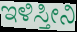
ಇಳಿಸ್ತೀನಿ